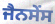
ਜੈਨਸੇਂਸ